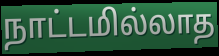
நாட்டமில்லாத